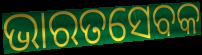
ଭାରତସେବକ